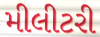
મીલીટરી